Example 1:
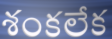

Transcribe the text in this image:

శంకలేక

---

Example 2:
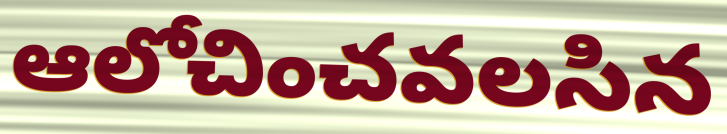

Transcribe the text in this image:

ఆలోచించవలసిన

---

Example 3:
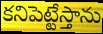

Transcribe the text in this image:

కనిపెట్టేస్తాను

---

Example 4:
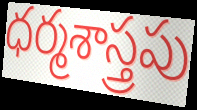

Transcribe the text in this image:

ధర్మశాస్త్రపు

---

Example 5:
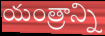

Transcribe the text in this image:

యంత్రాన్ని